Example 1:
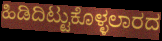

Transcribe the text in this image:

ಹಿಡಿದಿಟ್ಟುಕೊಳ್ಳಲಾರದ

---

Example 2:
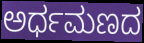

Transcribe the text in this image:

ಅರ್ಧಮಣದ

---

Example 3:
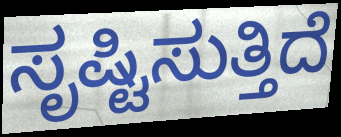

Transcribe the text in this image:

ಸೃಷ್ಟಿಸುತ್ತಿದೆ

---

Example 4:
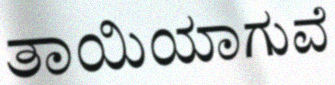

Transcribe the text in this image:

ತಾಯಿಯಾಗುವೆ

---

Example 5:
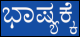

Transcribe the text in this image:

ಭಾಷ್ಯಕ್ಕೆ